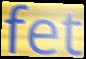
fet